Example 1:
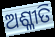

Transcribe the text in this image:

ଅଶ୍ଳୀତି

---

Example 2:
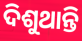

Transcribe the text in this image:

ଦିଶୁଥାନ୍ତି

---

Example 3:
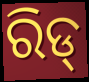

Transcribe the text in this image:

ରିଡ୍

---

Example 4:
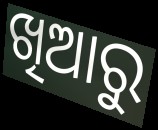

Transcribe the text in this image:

ଖିଆରୁ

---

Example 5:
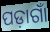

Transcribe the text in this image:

ପଡ଼ାଗାଁ